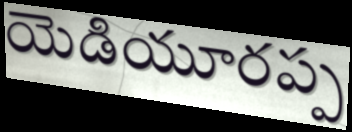
యెడియూరప్ప